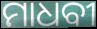
ମାଧବୀ